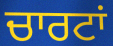
ਚਾਰਟਾਂ